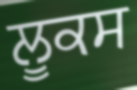
ਲੂਕਸ